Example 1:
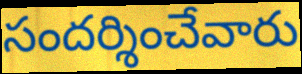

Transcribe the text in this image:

సందర్శించేవారు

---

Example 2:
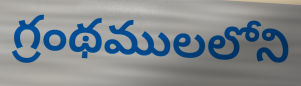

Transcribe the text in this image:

గ్రంథములలోని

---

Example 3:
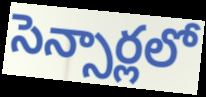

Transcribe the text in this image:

సెన్సార్లలో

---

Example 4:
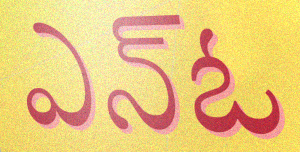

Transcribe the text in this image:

ఎన్ఓ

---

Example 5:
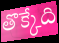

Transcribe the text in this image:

తొక్కేది